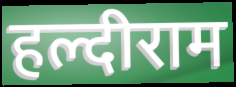
हल्दीराम